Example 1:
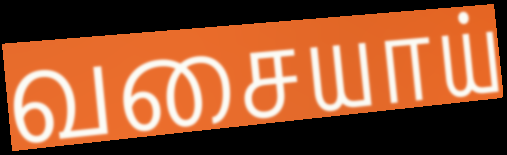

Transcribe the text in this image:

வசையாய்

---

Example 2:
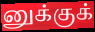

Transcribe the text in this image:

னுக்குக்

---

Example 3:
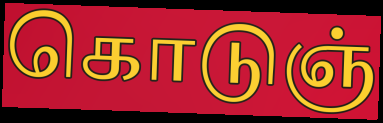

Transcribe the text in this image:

கொடுஞ்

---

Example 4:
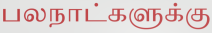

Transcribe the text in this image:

பலநாட்களுக்கு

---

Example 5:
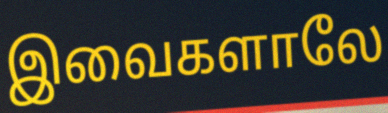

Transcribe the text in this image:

இவைகளாலே